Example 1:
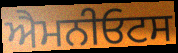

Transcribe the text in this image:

ਐਮਨੀਓਟਸ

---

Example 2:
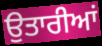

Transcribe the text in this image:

ਉਤਾਰੀਆਂ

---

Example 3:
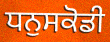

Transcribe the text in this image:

ਧਨੁਸਕੋਡੀ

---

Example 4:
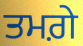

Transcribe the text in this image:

ਤਮਗ਼ੇ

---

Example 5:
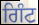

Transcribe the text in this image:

ਗਿੰਟ